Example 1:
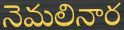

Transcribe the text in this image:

నెమలినార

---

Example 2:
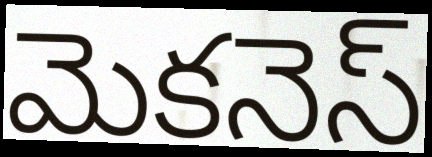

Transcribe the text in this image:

మెకనెస్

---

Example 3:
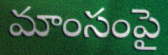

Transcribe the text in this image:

మాంసంపై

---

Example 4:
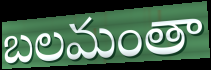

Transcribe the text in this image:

బలమంతా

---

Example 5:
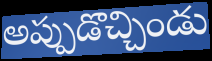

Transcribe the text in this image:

అప్పుడొచ్చిండు